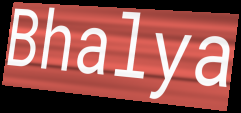
Bhalya